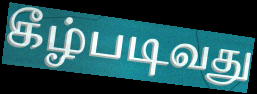
கீழ்படிவது